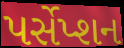
પર્સેપ્શન